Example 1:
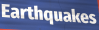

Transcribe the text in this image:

Earthquakes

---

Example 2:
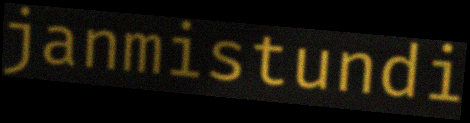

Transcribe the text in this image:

janmistundi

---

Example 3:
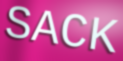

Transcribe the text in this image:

SACK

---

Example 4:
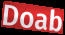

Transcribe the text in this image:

Doab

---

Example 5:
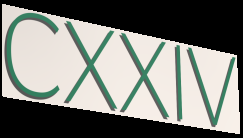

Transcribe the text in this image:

CXXIV